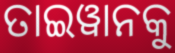
ତାଇୱାନକୁ